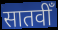
सातवीँ